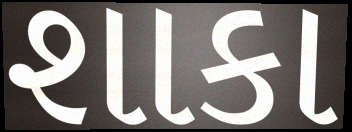
શાકા